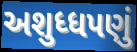
અશુધ્ધપણું